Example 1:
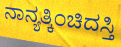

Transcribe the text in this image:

ನಾನ್ಯತ್ಕಿಂಚಿದಸ್ತಿ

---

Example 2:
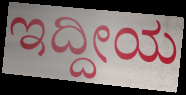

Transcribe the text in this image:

ಇದ್ದೀಯ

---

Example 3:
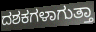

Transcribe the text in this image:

ದಶಕಗಳಾಗುತ್ತಾ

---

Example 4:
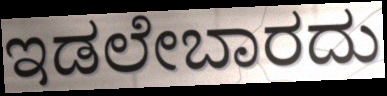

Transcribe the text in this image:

ಇಡಲೇಬಾರದು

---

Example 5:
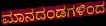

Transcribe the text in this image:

ಮಾನದಂಡಗಳಿಂದ